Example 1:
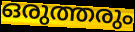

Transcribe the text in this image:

ഒരുത്തരും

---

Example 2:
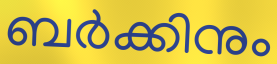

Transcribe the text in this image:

ബർക്കിനും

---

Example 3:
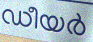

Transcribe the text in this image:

ഡീയർ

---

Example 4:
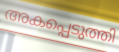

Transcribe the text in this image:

അകപ്പെടുത്തി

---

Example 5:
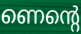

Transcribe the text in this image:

ണെന്റെ